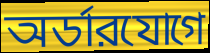
অর্ডারযোগে